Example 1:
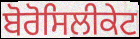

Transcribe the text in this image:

ਬੋਰੋਸਿਲੀਕੇਟ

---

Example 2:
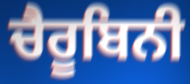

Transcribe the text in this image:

ਚੈਰੂਬਿਨੀ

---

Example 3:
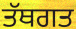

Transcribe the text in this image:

ਤੱਥਗਤ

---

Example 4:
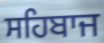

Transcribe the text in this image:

ਸਹਿਬਾਜ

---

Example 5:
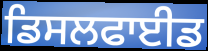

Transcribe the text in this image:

ਡਿਸਲਫਾਈਡ